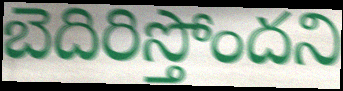
బెదిరిస్తోందని